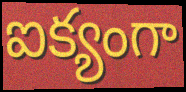
ఐక్యంగా